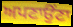
ਅਪਣਾਉਂਣਾ